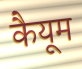
कैयूम